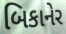
બિકાનેર